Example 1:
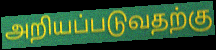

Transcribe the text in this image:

அறியப்படுவதற்கு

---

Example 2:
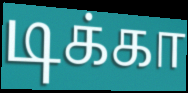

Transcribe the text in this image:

டிக்கா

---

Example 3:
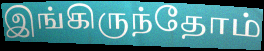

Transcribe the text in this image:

இங்கிருந்தோம்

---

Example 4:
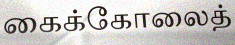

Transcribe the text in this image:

கைக்கோலைத்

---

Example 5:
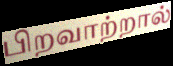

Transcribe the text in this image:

பிறவாற்றால்